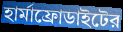
হার্মাফ্রোডাইটের